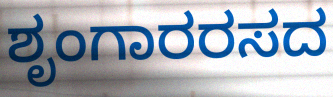
ಶೃಂಗಾರರಸದ